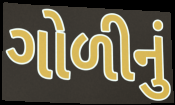
ગોળીનું